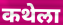
कथेला